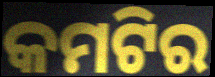
କମଟିର